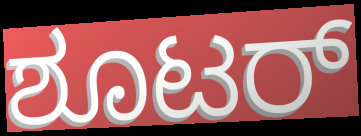
ಶೂಟರ್